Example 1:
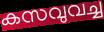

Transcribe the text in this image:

കസവുവച്ച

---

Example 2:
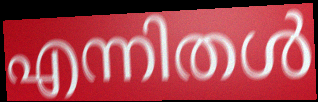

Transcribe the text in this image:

എന്നിതൾ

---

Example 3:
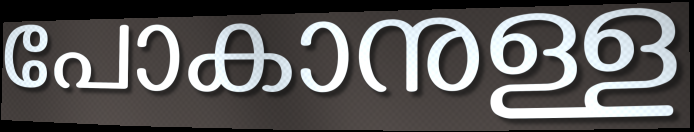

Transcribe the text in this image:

പോകാനുള്ള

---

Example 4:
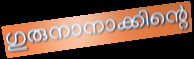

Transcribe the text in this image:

ഗുരുനാനാക്കിന്റെ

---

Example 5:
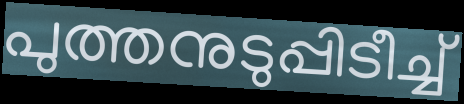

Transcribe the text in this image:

പുത്തനുടുപ്പിടീച്ച്